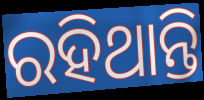
ରହିଥାନ୍ତି